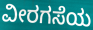
ವೀರಗಸೆಯ